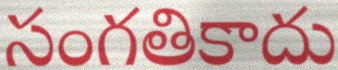
సంగతికాదు